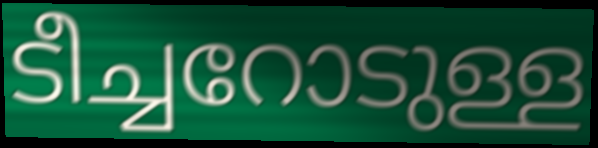
ടീച്ചറോടുള്ള